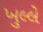
ખુલ્લે